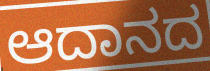
ಆದಾನದ